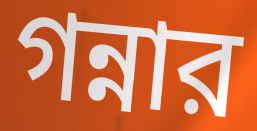
গন্নার